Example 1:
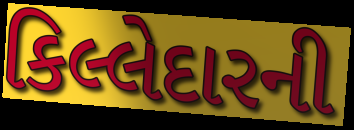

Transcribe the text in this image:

કિલ્લેદારની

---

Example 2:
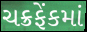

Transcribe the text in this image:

ચક્રફેંકમાં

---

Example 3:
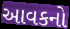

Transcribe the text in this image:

આવકનો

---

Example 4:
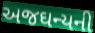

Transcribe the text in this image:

અજઘન્યની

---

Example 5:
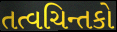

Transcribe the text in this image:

તત્વચિન્તકો